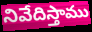
నివేదిస్తాము